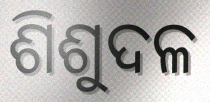
ଶିଶୁଦଳ